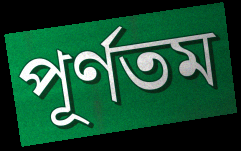
পূর্ণতম